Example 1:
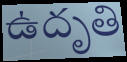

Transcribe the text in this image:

ఉదృతి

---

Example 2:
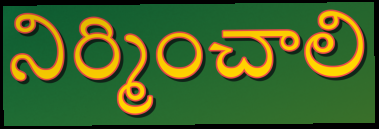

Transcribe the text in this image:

నిర్మించాలి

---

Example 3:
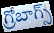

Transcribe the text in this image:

గ్రోబాగ్స్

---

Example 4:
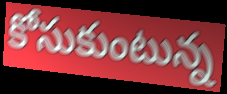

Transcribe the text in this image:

కోసుకుంటున్న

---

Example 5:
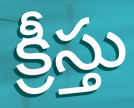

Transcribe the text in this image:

క్రీస్తు